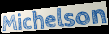
Michelson